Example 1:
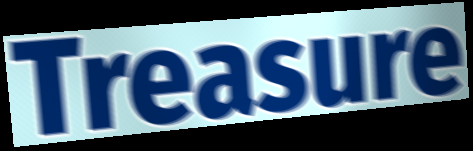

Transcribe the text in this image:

Treasure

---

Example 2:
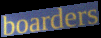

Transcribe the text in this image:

boarders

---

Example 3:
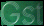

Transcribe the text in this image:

Gst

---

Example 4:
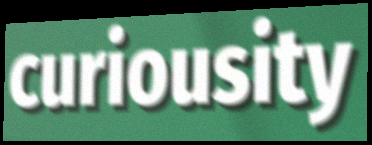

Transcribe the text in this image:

curiousity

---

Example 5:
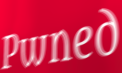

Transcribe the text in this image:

Pwned